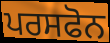
ਪਰਸਫੋਨ